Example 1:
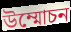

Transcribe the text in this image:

উম্মোচন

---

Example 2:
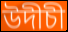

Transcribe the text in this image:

উদীচী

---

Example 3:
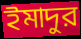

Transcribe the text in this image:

ইমাদুর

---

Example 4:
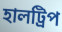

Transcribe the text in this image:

হালট্রিপ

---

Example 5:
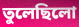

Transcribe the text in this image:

তুলেছিলো